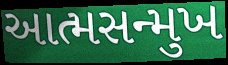
આત્મસન્મુખ